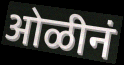
ओळीनं